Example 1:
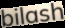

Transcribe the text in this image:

bilash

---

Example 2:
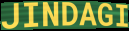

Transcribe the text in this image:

JINDAGI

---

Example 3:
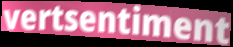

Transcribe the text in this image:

vertsentiment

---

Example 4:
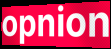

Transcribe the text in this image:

opnion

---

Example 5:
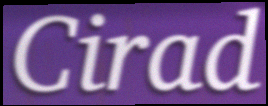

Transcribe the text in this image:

Cirad